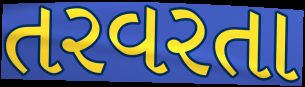
તરવરતા